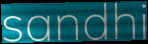
sandhi